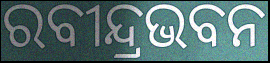
ରବୀନ୍ଦ୍ରଭବନ